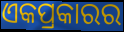
ଏକପ୍ରକାରର